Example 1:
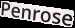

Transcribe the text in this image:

Penrose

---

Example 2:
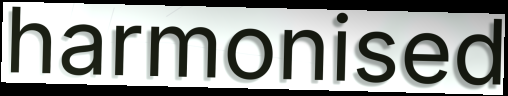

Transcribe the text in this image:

harmonised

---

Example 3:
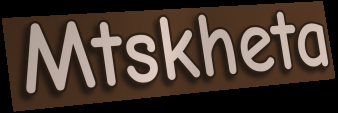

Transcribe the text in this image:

Mtskheta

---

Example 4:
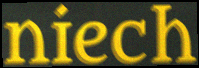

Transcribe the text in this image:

niech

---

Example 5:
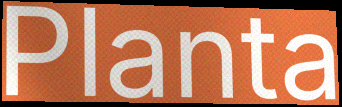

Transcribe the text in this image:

Planta